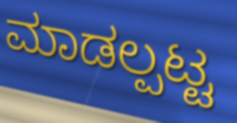
ಮಾಡಲ್ಪಟ್ಟ